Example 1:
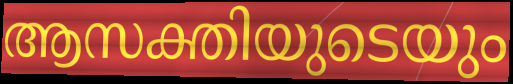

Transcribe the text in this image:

ആസക്തിയുടെയും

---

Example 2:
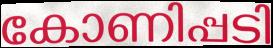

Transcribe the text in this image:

കോണിപ്പടി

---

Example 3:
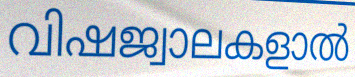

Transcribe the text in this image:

വിഷജ്വാലകളാൽ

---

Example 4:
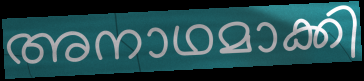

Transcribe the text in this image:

അനാഥമാക്കി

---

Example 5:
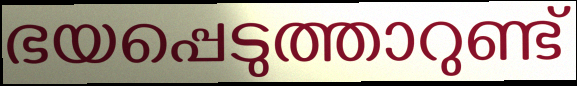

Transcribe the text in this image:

ഭയപ്പെടുത്താറുണ്ട്